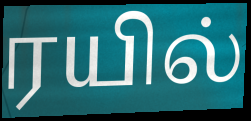
ரயில்